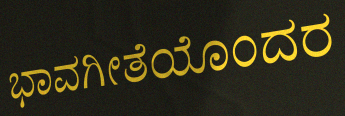
ಭಾವಗೀತೆಯೊಂದರ